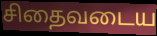
சிதைவடைய